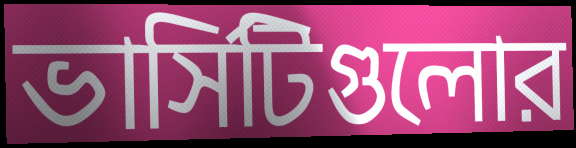
ভার্সিটিগুলোর